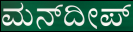
ಮನ್‍ದೀಪ್